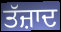
ਤੱਜ਼ਾਦ